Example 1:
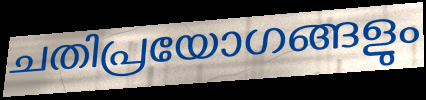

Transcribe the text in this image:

ചതിപ്രയോഗങ്ങളും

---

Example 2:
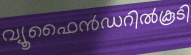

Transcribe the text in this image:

വ്യൂഫൈൻഡറിൽകൂടി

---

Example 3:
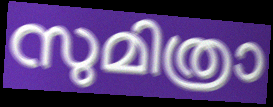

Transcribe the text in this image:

സുമിത്രാ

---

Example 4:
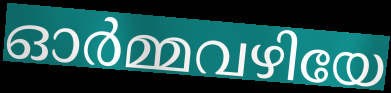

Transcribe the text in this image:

ഓർമ്മവഴിയേ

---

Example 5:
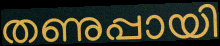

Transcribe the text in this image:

തണുപ്പായി